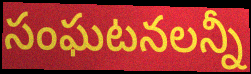
సంఘటనలన్నీ